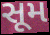
સૂમ